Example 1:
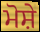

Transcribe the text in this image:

ਮੋਸ਼ੇ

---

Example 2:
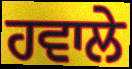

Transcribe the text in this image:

ਹਵਾਲੇ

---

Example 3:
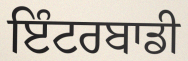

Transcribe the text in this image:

ਇੰਟਰਬਾਡੀ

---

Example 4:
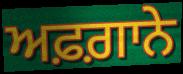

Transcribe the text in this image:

ਅਫ਼ਗ਼ਾਨੇ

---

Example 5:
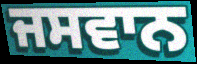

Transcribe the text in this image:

ਜਸਵਾਨ